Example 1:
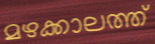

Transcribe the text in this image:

മഴക്കാലത്ത്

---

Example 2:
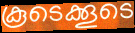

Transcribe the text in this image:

കൂടെക്കൂടെ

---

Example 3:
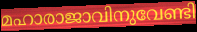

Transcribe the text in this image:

മഹാരാജാവിനുവേണ്ടി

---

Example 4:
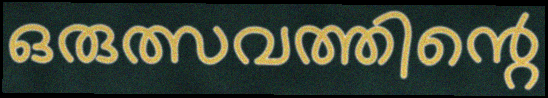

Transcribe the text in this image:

ഒരുത്സവത്തിന്റെ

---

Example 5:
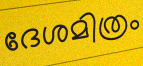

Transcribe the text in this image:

ദേശമിത്രം